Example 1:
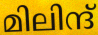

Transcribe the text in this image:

മിലിന്ദ്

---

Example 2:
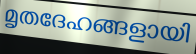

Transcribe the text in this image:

മൃതദേഹങ്ങളായി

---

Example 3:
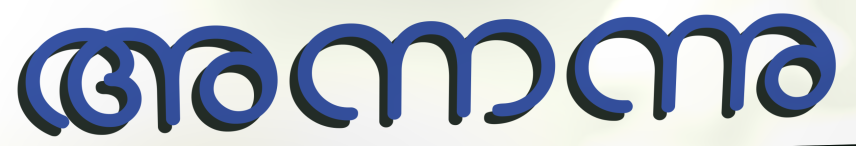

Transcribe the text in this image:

അന്നന്നു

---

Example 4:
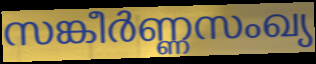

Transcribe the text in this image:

സങ്കീർണ്ണസംഖ്യ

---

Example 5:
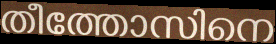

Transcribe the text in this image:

തീത്തോസിനെ